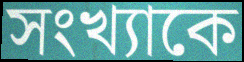
সংখ্যাকে